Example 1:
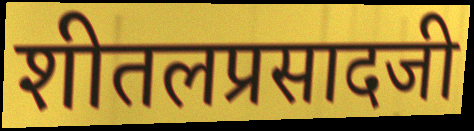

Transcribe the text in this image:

शीतलप्रसादजी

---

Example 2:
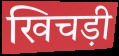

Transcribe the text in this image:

खिचड़ी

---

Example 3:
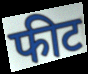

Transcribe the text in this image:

फीट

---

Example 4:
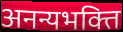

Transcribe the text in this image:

अनन्यभक्ति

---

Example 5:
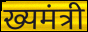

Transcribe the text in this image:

ख्यमंत्री